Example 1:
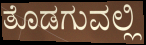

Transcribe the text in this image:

ತೊಡಗುವಲ್ಲಿ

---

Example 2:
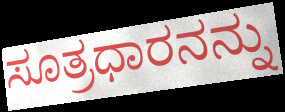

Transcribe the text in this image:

ಸೂತ್ರಧಾರನನ್ನು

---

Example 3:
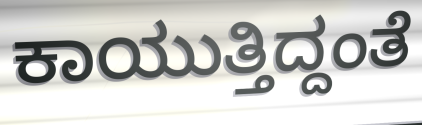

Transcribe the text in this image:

ಕಾಯುತ್ತಿದ್ದಂತೆ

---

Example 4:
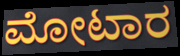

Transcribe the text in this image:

ಮೋಟಾರ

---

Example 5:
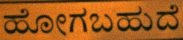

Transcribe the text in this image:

ಹೋಗಬಹುದೆ